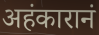
अहंकारानं